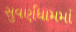
સુવર્ણધામમાં